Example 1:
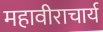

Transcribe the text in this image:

महावीराचार्य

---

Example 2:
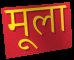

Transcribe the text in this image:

मूला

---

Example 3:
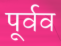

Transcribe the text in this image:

पूर्वव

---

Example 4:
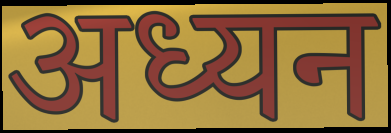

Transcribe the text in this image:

अध्यन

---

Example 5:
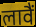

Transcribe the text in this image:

लावैं